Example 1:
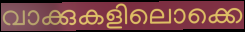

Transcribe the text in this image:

വാക്കുകളിലൊക്കെ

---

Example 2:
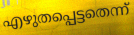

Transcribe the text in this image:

എഴുതപ്പെട്ടതെന്ന്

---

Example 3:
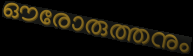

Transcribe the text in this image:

ഔരോരുത്തനും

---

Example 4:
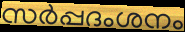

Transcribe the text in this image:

സർപ്പദംശനം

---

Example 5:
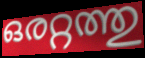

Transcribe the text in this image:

ഒരറ്റത്തു